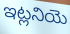
ఇట్లనియె